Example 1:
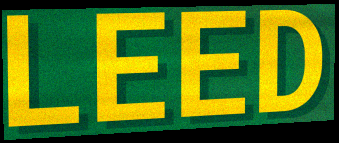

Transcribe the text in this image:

LEED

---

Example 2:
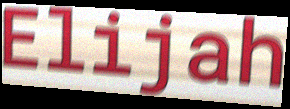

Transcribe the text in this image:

Elijah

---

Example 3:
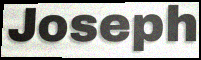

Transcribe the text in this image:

Joseph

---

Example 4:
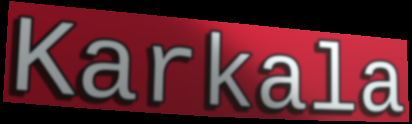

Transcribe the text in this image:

Karkala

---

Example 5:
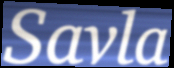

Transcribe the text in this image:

Savla